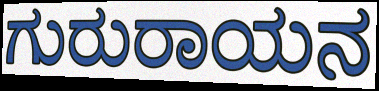
ಗುರುರಾಯನ